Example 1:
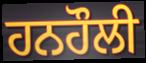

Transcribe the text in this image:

ਹਨਹੌਲੀ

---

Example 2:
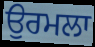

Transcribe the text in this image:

ਉਰਮਲਾ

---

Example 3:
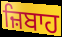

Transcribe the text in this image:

ਜ਼ਿਬਾਹ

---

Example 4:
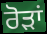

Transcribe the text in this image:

ਰੋੜਾਂ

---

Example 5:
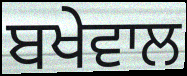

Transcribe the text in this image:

ਬਖੇਵਾਲ